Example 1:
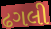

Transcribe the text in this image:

ઢગલી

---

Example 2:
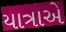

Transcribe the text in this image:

યાત્રાએ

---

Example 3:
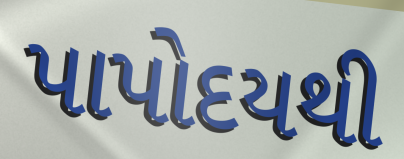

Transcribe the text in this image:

પાપોદયથી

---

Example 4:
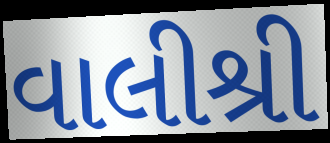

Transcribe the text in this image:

વાલીશ્રી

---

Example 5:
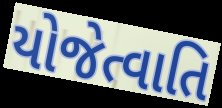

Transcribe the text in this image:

યોજેત્વાતિ